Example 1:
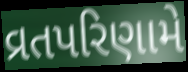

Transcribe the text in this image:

વ્રતપરિણામે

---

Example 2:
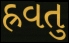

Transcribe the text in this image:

હ્રવતુ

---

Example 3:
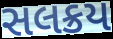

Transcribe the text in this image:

સલક્રય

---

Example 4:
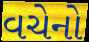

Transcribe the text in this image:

વચેનો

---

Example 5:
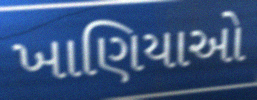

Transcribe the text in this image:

ખાણિયાઓ